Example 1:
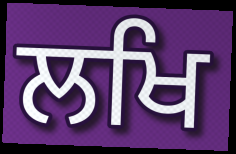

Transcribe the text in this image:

ਲਖਿ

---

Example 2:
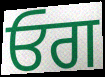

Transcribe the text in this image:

ਓਗ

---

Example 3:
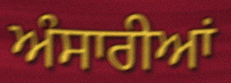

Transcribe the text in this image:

ਅੰਸਾਰੀਆਂ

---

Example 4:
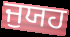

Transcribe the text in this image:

ਜੁਯਹ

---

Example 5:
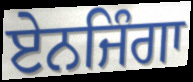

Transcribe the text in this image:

ਏਨਜਿੰਗਾ